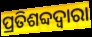
ପ୍ରତିଶବ୍ଦଦ୍ୱାରା